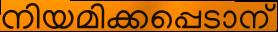
നിയമിക്കപ്പെടാന്